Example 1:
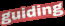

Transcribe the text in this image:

guiding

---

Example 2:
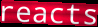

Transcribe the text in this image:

reacts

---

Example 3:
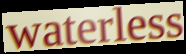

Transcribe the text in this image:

waterless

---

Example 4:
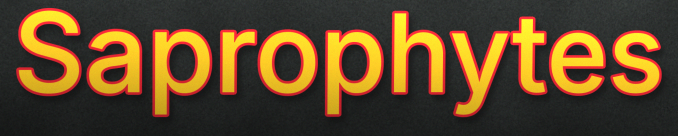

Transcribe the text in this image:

Saprophytes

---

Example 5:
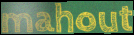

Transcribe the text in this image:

mahout